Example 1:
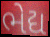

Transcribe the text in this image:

ભેદ્ય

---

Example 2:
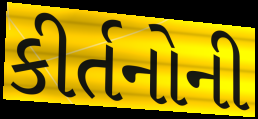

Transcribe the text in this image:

કીર્તનોની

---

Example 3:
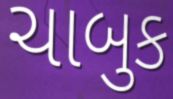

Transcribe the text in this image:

ચાબુક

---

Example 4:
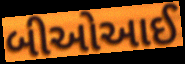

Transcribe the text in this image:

બીઓઆઈ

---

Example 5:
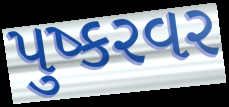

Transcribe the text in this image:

પુષ્કરવર